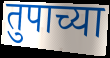
तुपाच्या